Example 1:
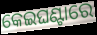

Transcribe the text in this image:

କେଇଘଣ୍ଟାରେ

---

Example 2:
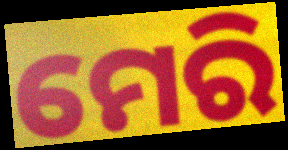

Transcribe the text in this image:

ମେରି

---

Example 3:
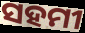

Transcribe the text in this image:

ସହମୀ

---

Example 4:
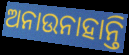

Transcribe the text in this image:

ଅନାଉନାହାନ୍ତି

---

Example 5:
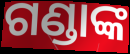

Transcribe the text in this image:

ଗଣ୍ଡାଙ୍କ